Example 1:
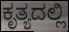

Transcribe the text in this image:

ಕೃತ್ಯದಲ್ಲಿ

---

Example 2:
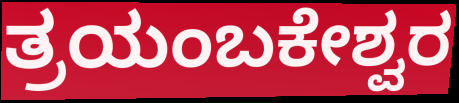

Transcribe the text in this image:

ತ್ರಯಂಬಕೇಶ್ವರ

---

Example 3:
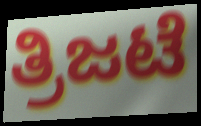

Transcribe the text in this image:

ತ್ರಿಜಟೆ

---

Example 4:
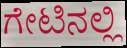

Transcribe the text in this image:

ಗೇಟಿನಲ್ಲಿ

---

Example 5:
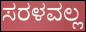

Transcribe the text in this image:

ಸರಳವಲ್ಲ